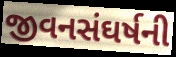
જીવનસંઘર્ષની